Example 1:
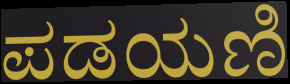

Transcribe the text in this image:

ಪಡಯಣಿ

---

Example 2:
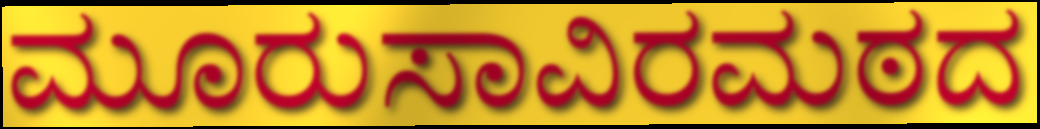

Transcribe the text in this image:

ಮೂರುಸಾವಿರಮಠದ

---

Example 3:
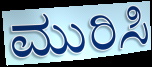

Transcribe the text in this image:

ಮುರಿಸಿ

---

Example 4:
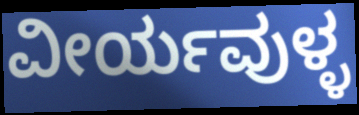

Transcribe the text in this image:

ವೀರ್ಯವುಳ್ಳ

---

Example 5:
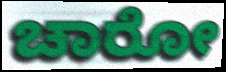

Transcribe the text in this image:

ಚಾರೋ